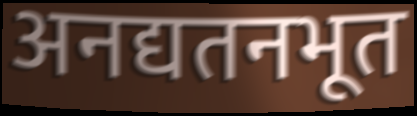
अनद्यतनभूत